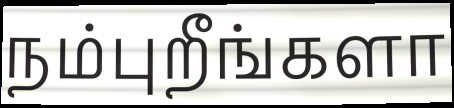
நம்புறீங்களா